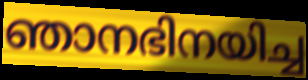
ഞാനഭിനയിച്ച